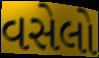
વસેલો